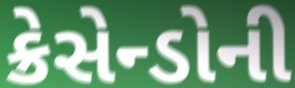
ક્રેસેન્ડોની